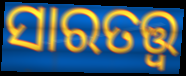
ସାରତତ୍ତ୍ୱ